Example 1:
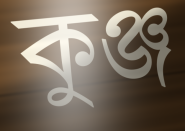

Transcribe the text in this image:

কুঞ্জ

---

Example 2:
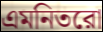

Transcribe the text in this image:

এমনিতরো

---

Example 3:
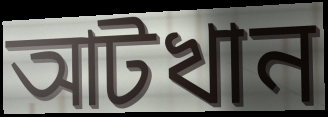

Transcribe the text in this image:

আটখান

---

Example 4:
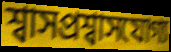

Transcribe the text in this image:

শ্বাসপ্রশ্বাসযোগ্য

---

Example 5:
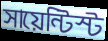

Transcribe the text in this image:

সায়েন্টিস্ট